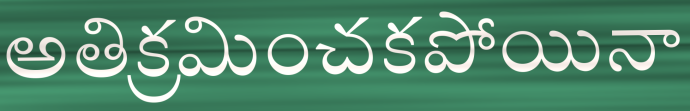
అతిక్రమించకపోయినా